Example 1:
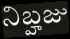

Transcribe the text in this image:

నిబ్హజు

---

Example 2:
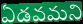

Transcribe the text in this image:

ఏడవమని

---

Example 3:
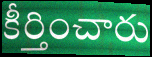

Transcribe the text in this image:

కీర్తించారు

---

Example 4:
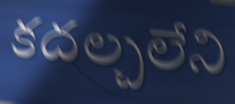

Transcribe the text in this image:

కదల్చలేని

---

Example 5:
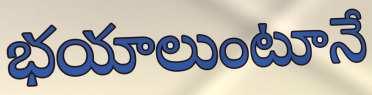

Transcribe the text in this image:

భయాలుంటూనే